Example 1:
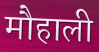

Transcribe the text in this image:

मौहाली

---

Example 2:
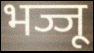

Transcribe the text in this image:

भज्जू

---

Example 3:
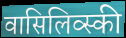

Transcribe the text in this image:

वासिलिव्स्की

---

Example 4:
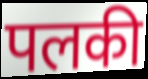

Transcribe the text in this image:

पलकी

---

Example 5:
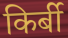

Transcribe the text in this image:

किर्बी